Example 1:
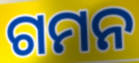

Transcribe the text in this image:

ଗମନ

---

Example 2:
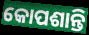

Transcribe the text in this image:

କୋପଶାନ୍ତି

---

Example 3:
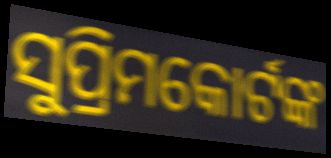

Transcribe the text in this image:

ସୁପ୍ରିମକୋର୍ଟଙ୍କ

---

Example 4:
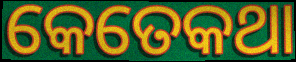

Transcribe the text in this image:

କେତେକଥା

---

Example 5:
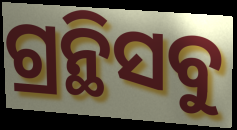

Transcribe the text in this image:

ଗ୍ରନ୍ଥିସବୁ